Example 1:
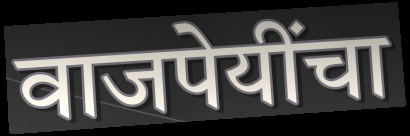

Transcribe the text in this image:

वाजपेयींचा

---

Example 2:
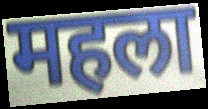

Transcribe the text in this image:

महला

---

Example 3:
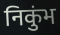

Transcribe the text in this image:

निकुंभ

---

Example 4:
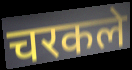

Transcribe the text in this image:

चरकले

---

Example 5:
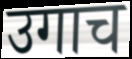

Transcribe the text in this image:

उगाच